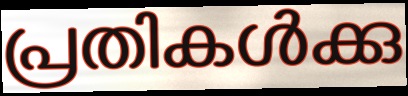
പ്രതികൾക്കു